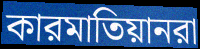
কারমাতিয়ানরা